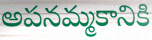
అపనమ్మకానికి